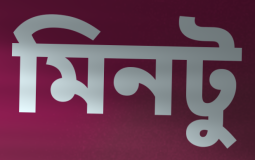
মিনটু